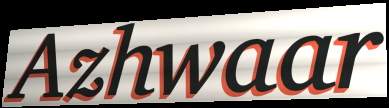
Azhwaar